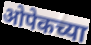
ओपेकच्या